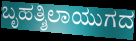
ಬೃಹತ್ಶಿಲಾಯುಗದ